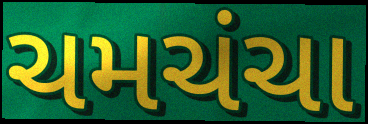
ચમચંચા